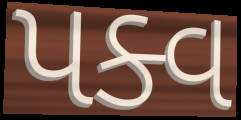
પક્વ